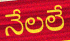
నేలలే